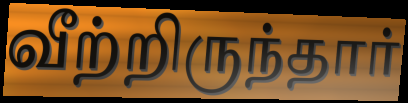
வீற்றிருந்தார்